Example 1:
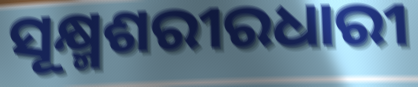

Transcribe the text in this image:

ସୂକ୍ଷ୍ମଶରୀରଧାରୀ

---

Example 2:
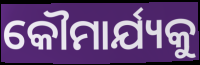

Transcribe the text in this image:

କୌମାର୍ଯ୍ୟକୁ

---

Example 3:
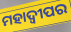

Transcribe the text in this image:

ମହାଦ୍ୱୀପର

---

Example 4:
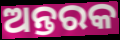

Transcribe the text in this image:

ଅନ୍ତରକ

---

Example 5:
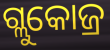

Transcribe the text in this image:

ଗ୍ଲୁକୋଜ୍ର